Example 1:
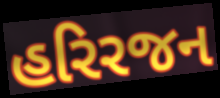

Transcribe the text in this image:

હરિરજન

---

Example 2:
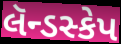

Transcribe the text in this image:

લૅન્ડસ્કેપ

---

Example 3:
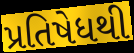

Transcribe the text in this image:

પ્રતિષેધથી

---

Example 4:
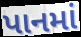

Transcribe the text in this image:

પાનમાં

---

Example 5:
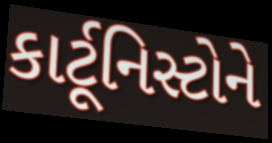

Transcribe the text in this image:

કાર્ટૂનિસ્ટોને